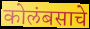
कोलंबसाचे